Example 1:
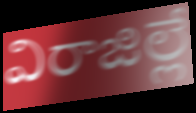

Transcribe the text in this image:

విరాజిల్లే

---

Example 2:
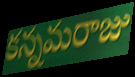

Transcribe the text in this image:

కన్నమరాజు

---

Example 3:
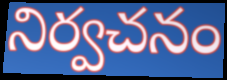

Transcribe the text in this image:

నిర్వచనం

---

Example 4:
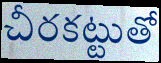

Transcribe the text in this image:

చీరకట్టుతో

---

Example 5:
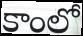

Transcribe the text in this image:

కాంలో